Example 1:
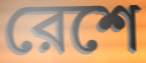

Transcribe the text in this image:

রেশে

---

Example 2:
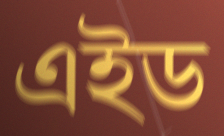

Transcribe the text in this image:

এইড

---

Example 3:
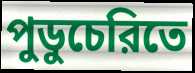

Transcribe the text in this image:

পুডুচেরিতে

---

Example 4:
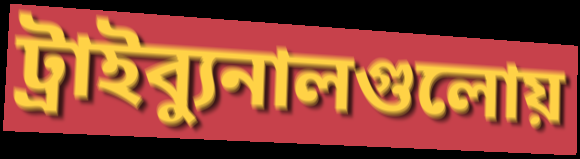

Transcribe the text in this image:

ট্রাইব্যুনালগুলোয়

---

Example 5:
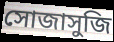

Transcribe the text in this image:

সোজাসুজি